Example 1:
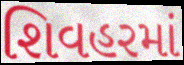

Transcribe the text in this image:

શિવહરમાં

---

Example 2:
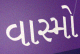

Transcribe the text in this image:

વાસ્મો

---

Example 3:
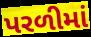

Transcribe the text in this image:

પરળીમાં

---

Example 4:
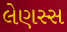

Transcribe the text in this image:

લેણસ્સ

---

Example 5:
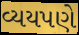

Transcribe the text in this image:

વ્યયપણે